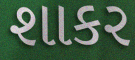
શાકર